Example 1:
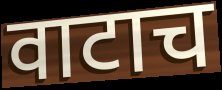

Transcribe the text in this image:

वाटाच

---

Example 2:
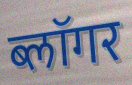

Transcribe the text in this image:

ब्लॉगर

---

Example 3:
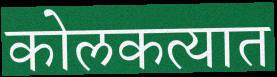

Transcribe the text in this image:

कोलकत्यात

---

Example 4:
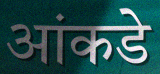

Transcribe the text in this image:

आंकडे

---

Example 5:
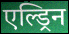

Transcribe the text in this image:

एल्ड्रिन